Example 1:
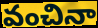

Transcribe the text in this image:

వంచినా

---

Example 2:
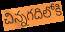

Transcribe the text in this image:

చిన్నగదిలోకి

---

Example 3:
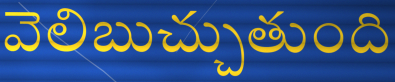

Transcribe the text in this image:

వెలిబుచ్చుతుంది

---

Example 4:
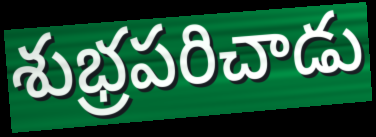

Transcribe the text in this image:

శుభ్రపరిచాడు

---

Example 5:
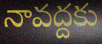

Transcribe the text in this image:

నావద్దకు